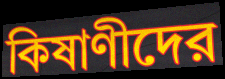
কিষাণীদের